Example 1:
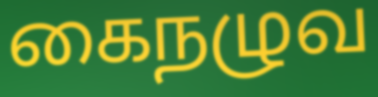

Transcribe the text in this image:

கைநழுவ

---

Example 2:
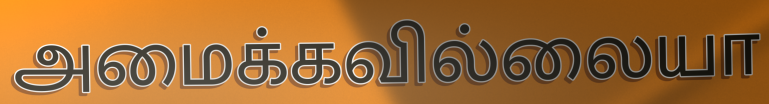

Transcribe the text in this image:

அமைக்கவில்லையா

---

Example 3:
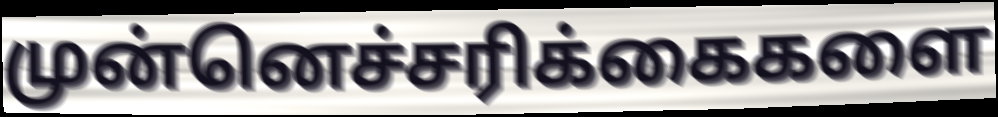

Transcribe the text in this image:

முன்னெச்சரிக்கைகளை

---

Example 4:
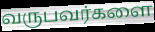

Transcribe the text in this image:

வருபவர்களை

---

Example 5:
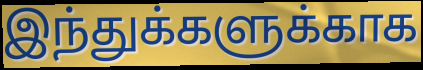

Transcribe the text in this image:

இந்துக்களுக்காக